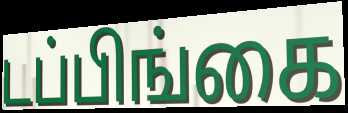
டப்பிங்கை